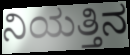
ನಿಯತ್ತಿನ